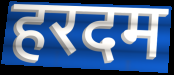
हरदम